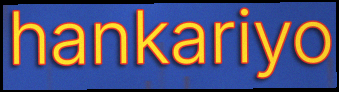
hankariyo